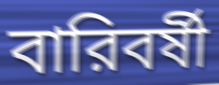
বারিবর্ষী